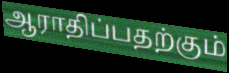
ஆராதிப்பதற்கும்